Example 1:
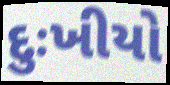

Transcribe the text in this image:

દુઃખીયો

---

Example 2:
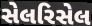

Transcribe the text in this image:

સેલરિસેલ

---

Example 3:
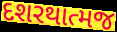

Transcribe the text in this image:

દશરથાત્મજ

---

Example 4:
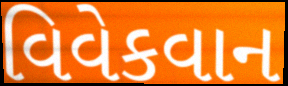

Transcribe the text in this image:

વિવેકવાન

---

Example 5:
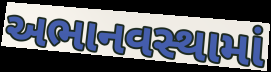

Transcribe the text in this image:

અભાનવસ્થામાં